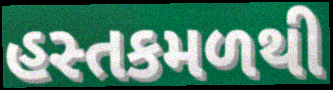
હસ્તકમળથી